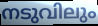
നടുവിലും